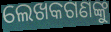
ଲେଖକଗଣଙ୍କୁ